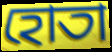
হোতা